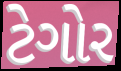
ટેગોર